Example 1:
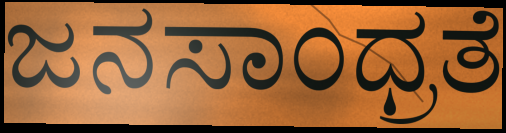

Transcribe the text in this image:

ಜನಸಾಂಧ್ರತೆ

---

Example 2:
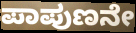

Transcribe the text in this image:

ಪಾಪುಣನೇ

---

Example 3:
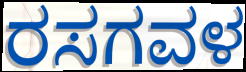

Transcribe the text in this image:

ರಸಗವಳ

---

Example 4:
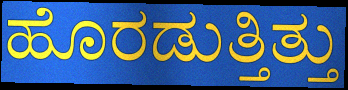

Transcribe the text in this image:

ಹೊರಡುತ್ತಿತ್ತು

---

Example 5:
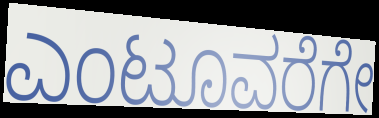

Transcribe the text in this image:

ಎಂಟೂವರೆಗೇ